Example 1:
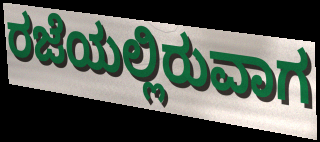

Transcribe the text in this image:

ರಜೆಯಲ್ಲಿರುವಾಗ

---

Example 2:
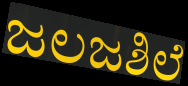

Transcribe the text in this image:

ಜಲಜಶಿಲೆ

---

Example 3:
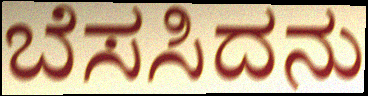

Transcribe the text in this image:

ಬೆಸಸಿದನು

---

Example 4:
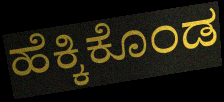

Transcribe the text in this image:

ಹೆಕ್ಕಿಕೊಂಡ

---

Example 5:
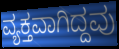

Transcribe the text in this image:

ವ್ಯಕ್ತವಾಗಿದ್ದವು